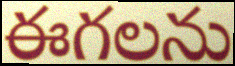
ఈగలను